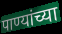
पाण्यांच्या